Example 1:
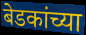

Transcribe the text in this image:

बेडकांच्या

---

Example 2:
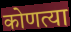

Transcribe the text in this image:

कोणत्या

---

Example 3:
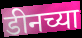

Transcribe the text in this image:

डीनच्या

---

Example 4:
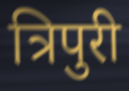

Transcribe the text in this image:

त्रिपुरी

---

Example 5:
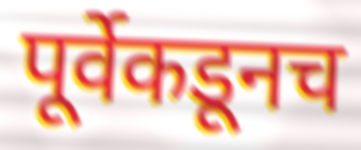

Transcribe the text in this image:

पूर्वेकडूनच